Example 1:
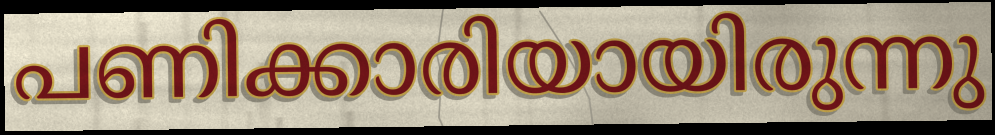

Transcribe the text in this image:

പണിക്കാരിയായിരുന്നു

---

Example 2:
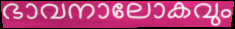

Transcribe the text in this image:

ഭാവനാലോകവും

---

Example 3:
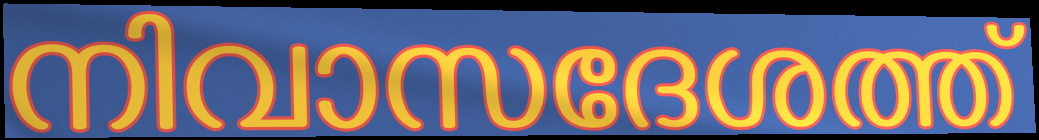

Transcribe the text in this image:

നിവാസദേശത്ത്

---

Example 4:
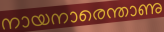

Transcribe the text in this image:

നായനാരെന്താണു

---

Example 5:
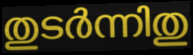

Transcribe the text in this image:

തുടർന്നിതു